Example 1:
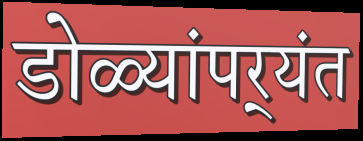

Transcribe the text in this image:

डोळ्यांपर्यंत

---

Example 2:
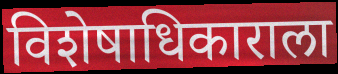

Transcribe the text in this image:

विशेषाधिकाराला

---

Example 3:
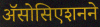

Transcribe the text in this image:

ॲसोसिएशनने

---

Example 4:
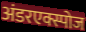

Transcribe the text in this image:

अंडरएक्स्पोज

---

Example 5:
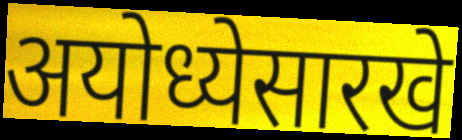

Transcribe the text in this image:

अयोध्येसारखे